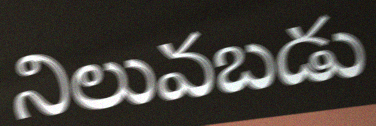
నిలువబడు